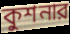
কুশনার